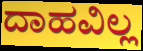
ದಾಹವಿಲ್ಲ